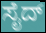
ಸೈದ್